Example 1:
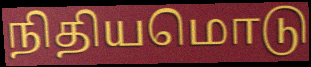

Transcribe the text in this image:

நிதியமொடு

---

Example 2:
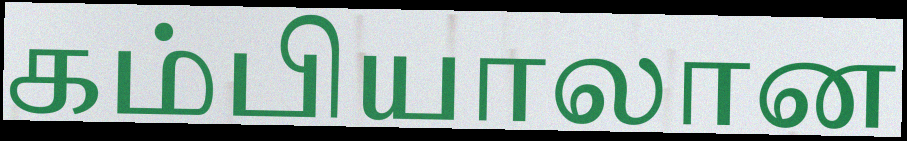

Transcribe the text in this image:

கம்பியாலான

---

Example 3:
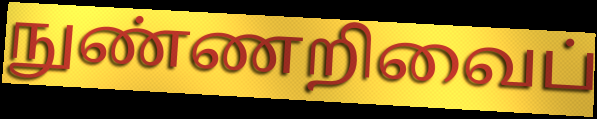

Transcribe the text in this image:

நுண்ணறிவைப்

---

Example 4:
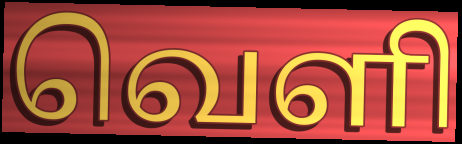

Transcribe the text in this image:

வெளி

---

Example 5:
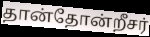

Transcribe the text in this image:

தான்தோன்றீசர்